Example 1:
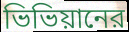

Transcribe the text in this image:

ভিভিয়ানের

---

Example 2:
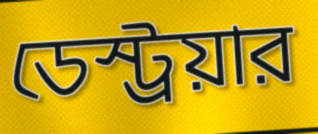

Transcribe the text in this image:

ডেস্ট্রয়ার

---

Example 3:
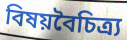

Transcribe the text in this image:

বিষয়বৈচিত্র্য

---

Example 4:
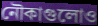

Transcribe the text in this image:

নৌকাগুলোও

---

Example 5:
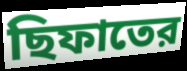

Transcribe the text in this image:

ছিফাতের